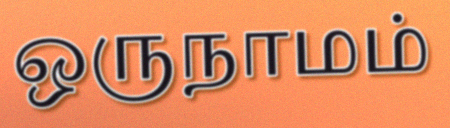
ஒருநாமம்